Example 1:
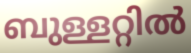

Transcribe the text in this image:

ബുള്ളറ്റിൽ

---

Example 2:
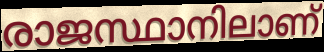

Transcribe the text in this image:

രാജസ്ഥാനിലാണ്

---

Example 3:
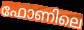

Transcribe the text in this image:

ഫോണിലെ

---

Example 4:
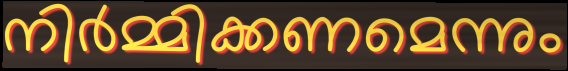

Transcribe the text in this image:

നിർമ്മിക്കണമെന്നും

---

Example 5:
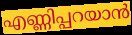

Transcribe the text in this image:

എണ്ണിപ്പറയാൻ